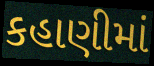
કહાણીમાં